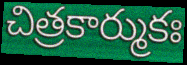
చిత్రకార్ముకః